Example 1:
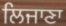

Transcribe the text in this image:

ਲਿਜਾਣਾ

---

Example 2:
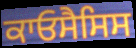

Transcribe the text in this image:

ਕਾਓਸੈਸਿਸ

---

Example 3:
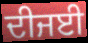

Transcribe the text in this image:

ਦੀਜਈ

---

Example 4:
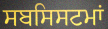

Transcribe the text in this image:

ਸਬਸਿਸਟਮਾਂ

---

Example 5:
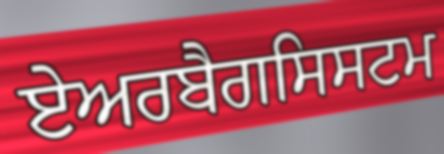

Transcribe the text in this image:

ਏਅਰਬੈਗਸਿਸਟਮ